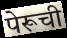
पेरूची